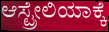
ಆಸ್ಟ್ರೇಲಿಯಾಕ್ಕೆ